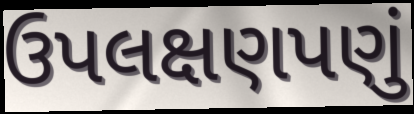
ઉપલક્ષણપણું